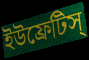
ইউফ্রেটিস্